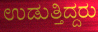
ಉಡುತ್ತಿದ್ದರು